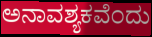
ಅನಾವಶ್ಯಕವೆಂದು